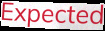
Expected